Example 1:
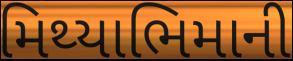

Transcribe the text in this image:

મિથ્યાભિમાની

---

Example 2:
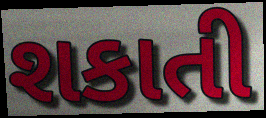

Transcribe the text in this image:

શકાતી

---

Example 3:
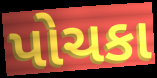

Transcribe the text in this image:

પોચકા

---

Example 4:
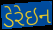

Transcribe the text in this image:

ડેરેઇન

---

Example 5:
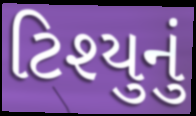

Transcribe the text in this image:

ટિશ્યુનું